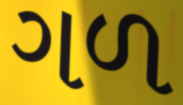
ગળ